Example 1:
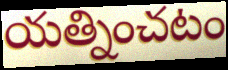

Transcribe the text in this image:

యత్నించటం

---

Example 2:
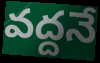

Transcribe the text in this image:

వద్దనే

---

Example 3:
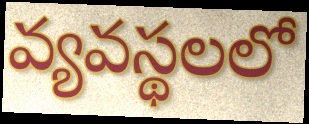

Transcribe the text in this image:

వ్యవస్థలలో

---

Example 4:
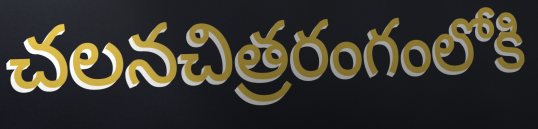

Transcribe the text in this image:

చలనచిత్రరంగంలోకి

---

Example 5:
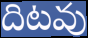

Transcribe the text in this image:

దిటవు